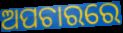
ଅପଚାରରେ